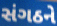
સંગઠને